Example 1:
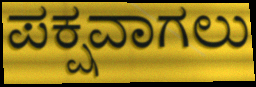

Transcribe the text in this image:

ಪಕ್ಷವಾಗಲು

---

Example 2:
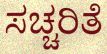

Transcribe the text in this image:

ಸಚ್ಚರಿತೆ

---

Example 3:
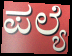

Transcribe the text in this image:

ಪಲ್ಯೆ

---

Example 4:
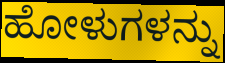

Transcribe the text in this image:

ಹೋಳುಗಳನ್ನು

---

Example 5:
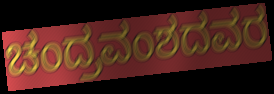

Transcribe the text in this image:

ಚಂದ್ರವಂಶದವರ